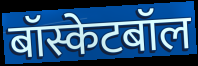
बॉस्केटबॉल